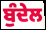
ਬੁੰਦੇਲ